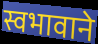
स्वभावाने